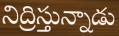
నిద్రిస్తున్నాడు